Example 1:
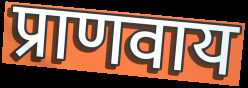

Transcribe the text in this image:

प्राणवाय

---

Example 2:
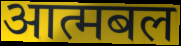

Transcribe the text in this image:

आत्मबल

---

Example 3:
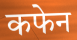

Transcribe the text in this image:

कफेन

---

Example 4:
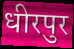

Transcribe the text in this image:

धीरपुर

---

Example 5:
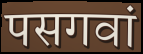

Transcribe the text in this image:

पसगवां